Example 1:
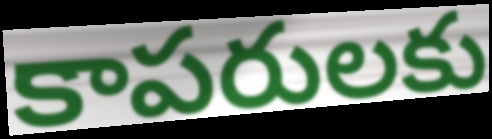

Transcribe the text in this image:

కాపరులకు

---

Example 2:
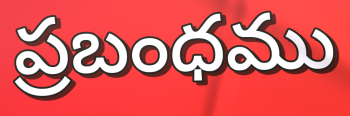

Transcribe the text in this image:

ప్రబంధము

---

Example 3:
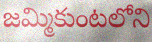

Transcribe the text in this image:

జమ్మికుంటలోని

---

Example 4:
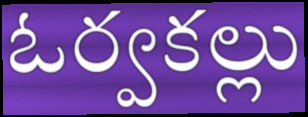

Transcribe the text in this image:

ఓర్వకల్లు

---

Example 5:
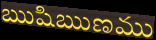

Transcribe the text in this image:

ఋషిఋణము